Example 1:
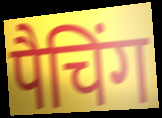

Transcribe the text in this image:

पैचिंग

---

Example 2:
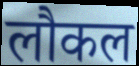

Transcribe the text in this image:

लौकल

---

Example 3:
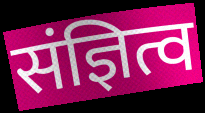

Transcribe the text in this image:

संज्ञित्व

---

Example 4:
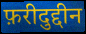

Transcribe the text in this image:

फ़रीदुद्दीन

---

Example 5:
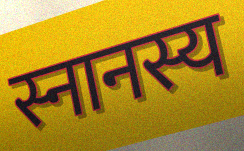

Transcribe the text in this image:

स्नानस्य